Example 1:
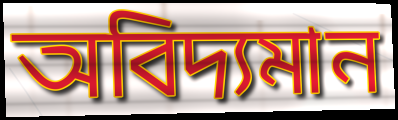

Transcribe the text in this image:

অবিদ্যমান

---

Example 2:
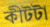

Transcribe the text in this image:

কীটটা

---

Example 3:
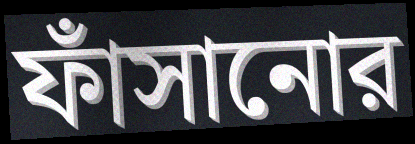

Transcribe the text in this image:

ফাঁসানোর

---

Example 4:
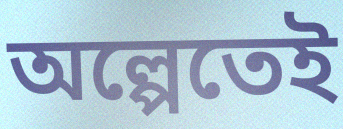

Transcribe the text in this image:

অল্পেতেই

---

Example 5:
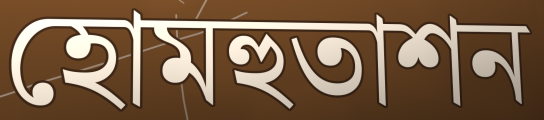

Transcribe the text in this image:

হোমহুতাশন